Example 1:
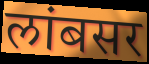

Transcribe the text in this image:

लांबसर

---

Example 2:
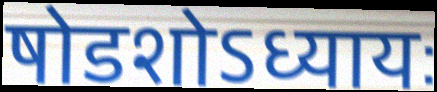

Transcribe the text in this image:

षोडशोऽध्यायः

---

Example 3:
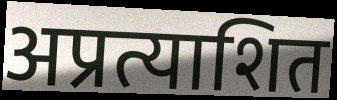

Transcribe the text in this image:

अप्रत्याशित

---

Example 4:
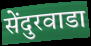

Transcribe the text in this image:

सेंदुरवाडा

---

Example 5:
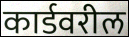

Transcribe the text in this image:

कार्डवरील